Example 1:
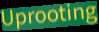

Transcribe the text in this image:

Uprooting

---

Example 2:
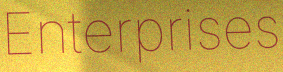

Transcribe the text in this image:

Enterprises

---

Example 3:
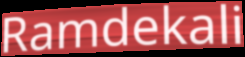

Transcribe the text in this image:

Ramdekali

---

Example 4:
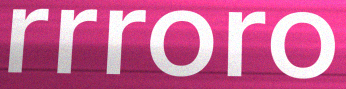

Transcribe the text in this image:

rrroro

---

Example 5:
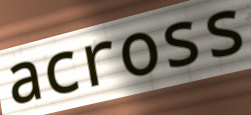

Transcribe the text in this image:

across